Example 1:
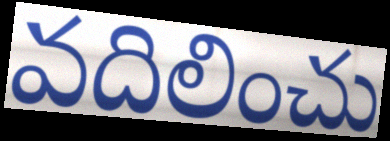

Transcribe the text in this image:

వదిలించు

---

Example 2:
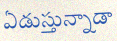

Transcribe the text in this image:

ఏడుస్తున్నాడా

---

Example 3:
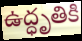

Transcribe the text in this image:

ఉద్ధృతికి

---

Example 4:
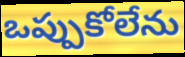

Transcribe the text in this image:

ఒప్పుకోలేను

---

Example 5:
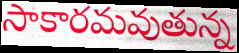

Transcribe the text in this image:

సాకారమవుతున్న